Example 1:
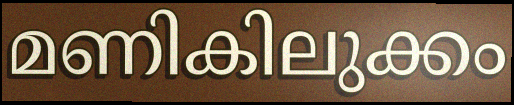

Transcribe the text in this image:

മണികിലുക്കം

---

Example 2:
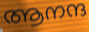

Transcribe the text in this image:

ആനന്ദ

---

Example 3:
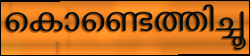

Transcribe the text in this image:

കൊണ്ടെത്തിച്ചൂ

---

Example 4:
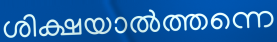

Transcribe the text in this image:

ശിക്ഷയാൽത്തന്നെ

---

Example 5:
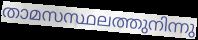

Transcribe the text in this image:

താമസസ്ഥലത്തുനിന്നു